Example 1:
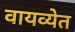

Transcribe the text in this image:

वायव्येत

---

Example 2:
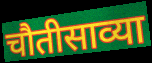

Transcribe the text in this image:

चौतीसाव्या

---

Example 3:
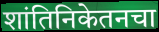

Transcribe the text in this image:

शांतिनिकेतनचा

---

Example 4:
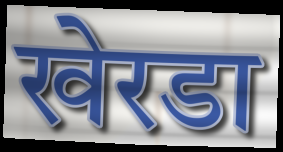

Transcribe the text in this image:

खेरडा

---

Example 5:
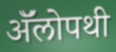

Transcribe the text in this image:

ॲॅलोपथी